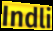
Indli